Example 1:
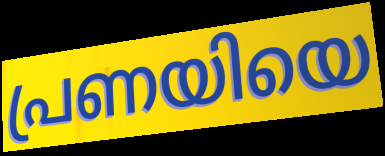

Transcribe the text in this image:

പ്രണയിയെ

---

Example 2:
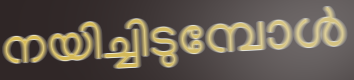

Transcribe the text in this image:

നയിച്ചിടുമ്പോൾ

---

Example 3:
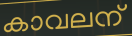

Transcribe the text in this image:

കാവലന്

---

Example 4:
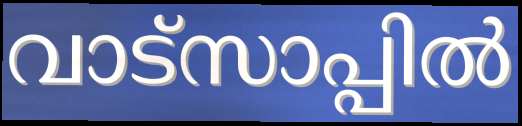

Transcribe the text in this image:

വാട്സാപ്പിൽ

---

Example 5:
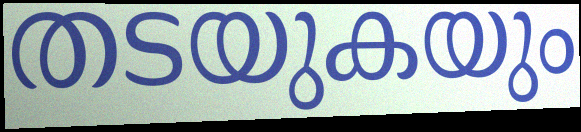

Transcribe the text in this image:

തടയുകയും